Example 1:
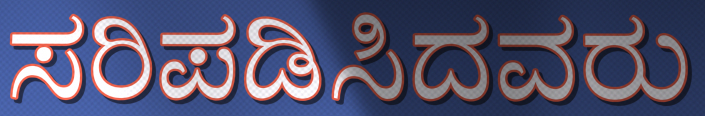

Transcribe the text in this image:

ಸರಿಪಡಿಸಿದವರು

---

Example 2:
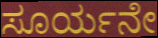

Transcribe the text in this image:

ಸೂರ್ಯನೇ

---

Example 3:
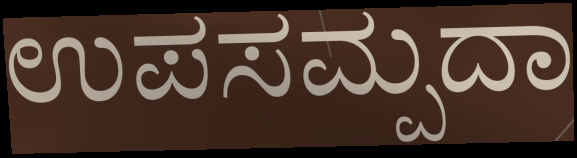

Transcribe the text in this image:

ಉಪಸಮ್ಪದಾ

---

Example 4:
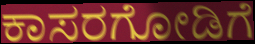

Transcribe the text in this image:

ಕಾಸರಗೋಡಿಗೆ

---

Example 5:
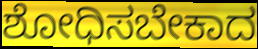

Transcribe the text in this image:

ಶೋಧಿಸಬೇಕಾದ